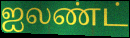
ஐலண்ட்